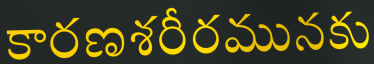
కారణశరీరమునకు